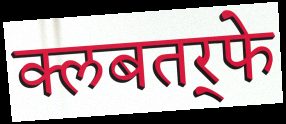
क्लबतर्फे